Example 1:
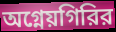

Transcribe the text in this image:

অগ্নেয়গিরির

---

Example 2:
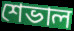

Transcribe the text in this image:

শেভাল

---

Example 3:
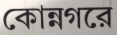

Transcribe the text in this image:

কোন্নগরে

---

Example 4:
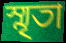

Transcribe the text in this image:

স্মৃতা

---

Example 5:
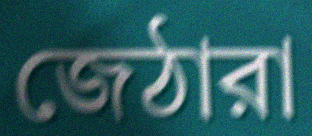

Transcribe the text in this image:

জেঠারা